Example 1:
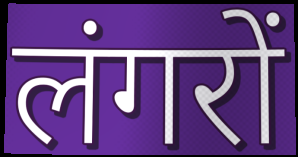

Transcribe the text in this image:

लंगरों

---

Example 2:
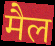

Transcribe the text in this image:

मैल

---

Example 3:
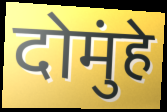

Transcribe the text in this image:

दोमुंहे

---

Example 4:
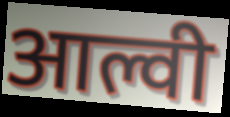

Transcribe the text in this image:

आल्वी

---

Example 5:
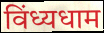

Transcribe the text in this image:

विंध्यधाम